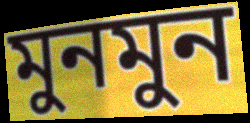
মুনমুন